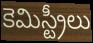
కెమిస్ట్రీలు